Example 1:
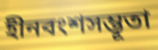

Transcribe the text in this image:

হীনবংশসম্ভূতা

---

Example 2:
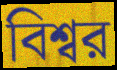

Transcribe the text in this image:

বিশ্বর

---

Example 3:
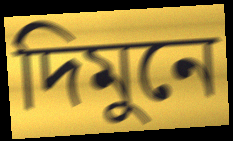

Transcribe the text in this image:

দিমুনে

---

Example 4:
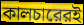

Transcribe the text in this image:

কালচারেরই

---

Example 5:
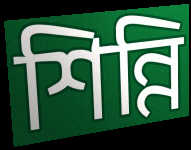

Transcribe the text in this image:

শিন্নি